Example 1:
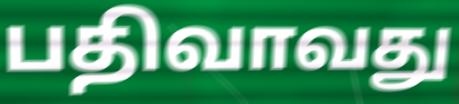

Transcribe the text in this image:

பதிவாவது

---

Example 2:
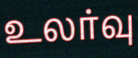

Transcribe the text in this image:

உலர்வு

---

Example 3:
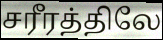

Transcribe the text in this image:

சரீரத்திலே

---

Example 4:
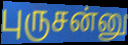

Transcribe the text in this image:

புருசன்னு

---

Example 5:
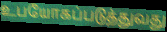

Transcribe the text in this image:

உபயோகப்படுத்துவது